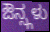
ಔನ್ಸ್ಗಳು